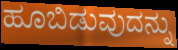
ಹೂಬಿಡುವುದನ್ನು